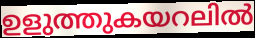
ഉളുത്തുകയറലിൽ